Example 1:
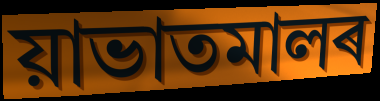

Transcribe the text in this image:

য়াভাতমালৰ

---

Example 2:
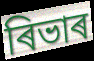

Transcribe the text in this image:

ৰিভাৰ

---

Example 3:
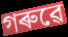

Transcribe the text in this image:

গৰুৱে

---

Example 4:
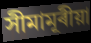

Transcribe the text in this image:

সীমামূৰীয়া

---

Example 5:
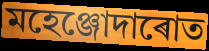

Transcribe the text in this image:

মহেঞ্জোদাৰোত